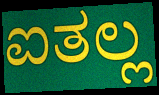
ಐತಲ್ಲ